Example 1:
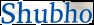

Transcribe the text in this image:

Shubho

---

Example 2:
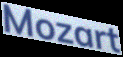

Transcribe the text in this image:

Mozart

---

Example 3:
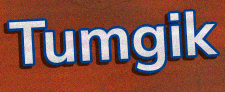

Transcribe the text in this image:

Tumgik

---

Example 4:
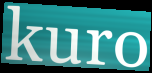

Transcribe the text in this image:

kuro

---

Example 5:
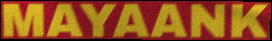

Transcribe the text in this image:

MAYAANK